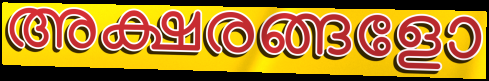
അക്ഷരങ്ങളോ